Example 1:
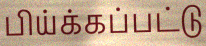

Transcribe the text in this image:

பிய்க்கப்பட்டு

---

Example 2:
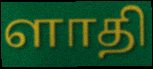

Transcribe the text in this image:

ளாதி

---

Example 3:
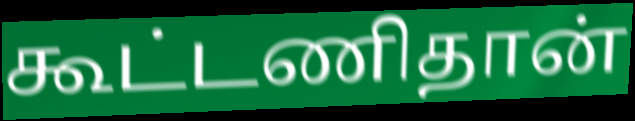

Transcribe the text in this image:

கூட்டணிதான்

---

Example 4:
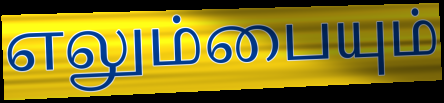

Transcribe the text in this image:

எலும்பையும்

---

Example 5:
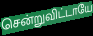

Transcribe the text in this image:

சென்றுவிட்டாயே